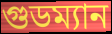
গুডম্যান